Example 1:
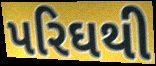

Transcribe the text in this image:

પરિઘથી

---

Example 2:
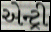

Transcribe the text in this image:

એન્ટ્રી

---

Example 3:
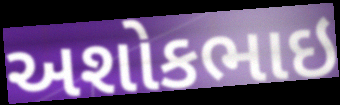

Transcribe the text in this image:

અશોકભાઇ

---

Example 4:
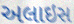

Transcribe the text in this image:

અલાઇસ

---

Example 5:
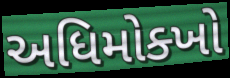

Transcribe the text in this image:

અધિમોક્ખો